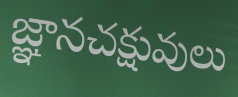
జ్ఞానచక్షువులు